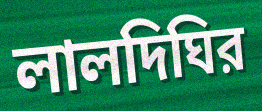
লালদিঘির